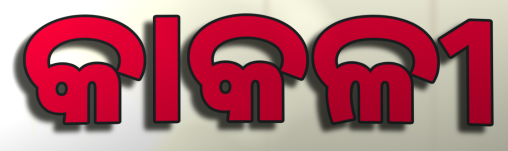
କାକଳୀ